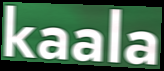
kaala